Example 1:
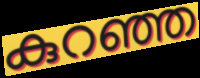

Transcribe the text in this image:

കുറഞ്ഞ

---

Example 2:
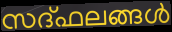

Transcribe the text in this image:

സദ്ഫലങ്ങൾ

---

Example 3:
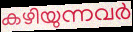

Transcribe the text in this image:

കഴിയുന്നവർ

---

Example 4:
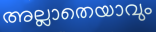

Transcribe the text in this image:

അല്ലാതെയാവും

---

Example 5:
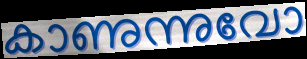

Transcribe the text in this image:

കാണുന്നുവോ